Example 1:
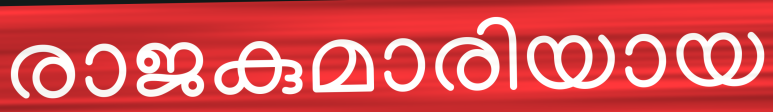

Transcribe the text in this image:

രാജകുമാരിയായ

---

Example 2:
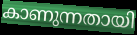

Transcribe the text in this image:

കാണുന്നതായി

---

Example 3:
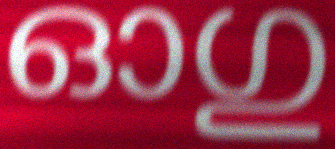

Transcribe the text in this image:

ഓഗു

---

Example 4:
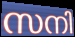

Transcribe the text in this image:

സനി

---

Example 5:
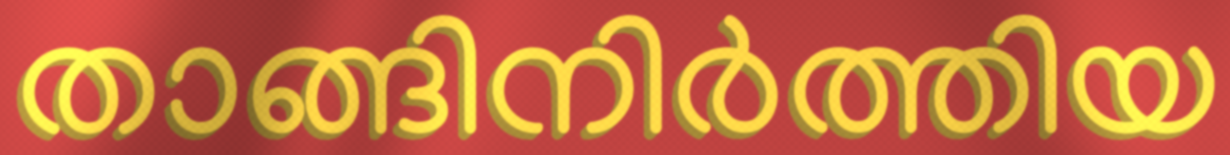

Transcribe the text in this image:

താങ്ങിനിർത്തിയ